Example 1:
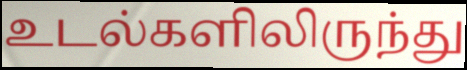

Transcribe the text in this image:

உடல்களிலிருந்து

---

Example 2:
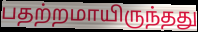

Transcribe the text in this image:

பதற்றமாயிருந்தது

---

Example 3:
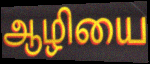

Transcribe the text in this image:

ஆழியை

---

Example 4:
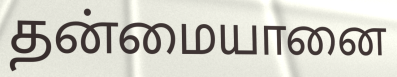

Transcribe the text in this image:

தன்மையானை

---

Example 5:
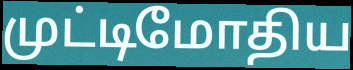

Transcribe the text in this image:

முட்டிமோதிய